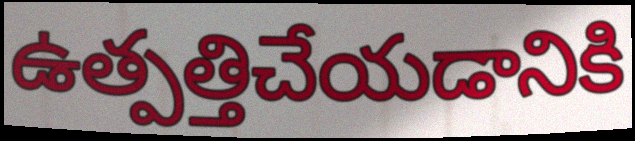
ఉత్పత్తిచేయడానికి